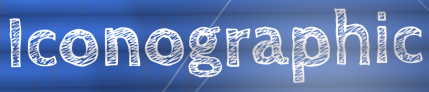
Iconographic